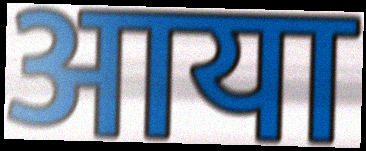
आया